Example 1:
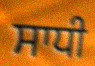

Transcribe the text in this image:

ਸਾਧੀ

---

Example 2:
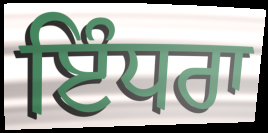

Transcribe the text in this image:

ਇੰਧਰਾ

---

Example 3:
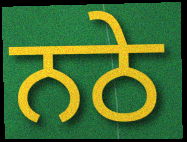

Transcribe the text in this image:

ਨਠੇ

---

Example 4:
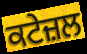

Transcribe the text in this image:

ਕਟੇਜ਼ਲ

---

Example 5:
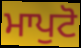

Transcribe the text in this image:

ਮਾਪੁਟੋ